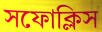
সফোক্লিস